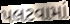
પલટવામાં